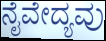
ನೈವೇದ್ಯವು